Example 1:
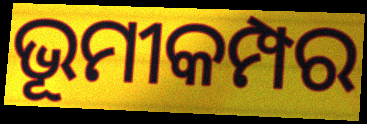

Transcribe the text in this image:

ଭୂମୀକମ୍ପର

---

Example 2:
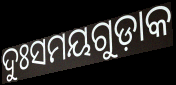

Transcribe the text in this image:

ଦୁଃସମୟଗୁଡ଼ାକ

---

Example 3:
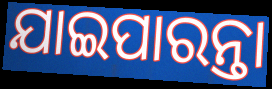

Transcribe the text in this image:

ଯାଇପାରନ୍ତା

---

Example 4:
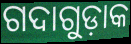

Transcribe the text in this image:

ଗଦାଗୁଡ଼ାକ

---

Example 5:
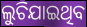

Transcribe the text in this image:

ଲୁଚିଯାଇଥିବ